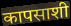
कापसाशी